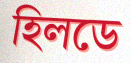
হিলডে